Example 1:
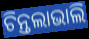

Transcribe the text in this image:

ଚିନ୍ତଲାଭାଲି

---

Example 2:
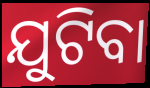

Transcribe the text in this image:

ଯୁଟିବା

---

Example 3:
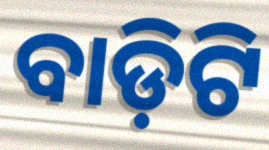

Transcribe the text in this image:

ବାଡ଼ିଟି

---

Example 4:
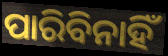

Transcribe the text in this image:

ପାରିବିନାହିଁ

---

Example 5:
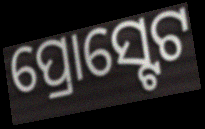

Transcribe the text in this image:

ପ୍ରୋସ୍ଟେଟ